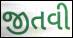
જીતવી